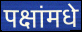
पक्षांमधे